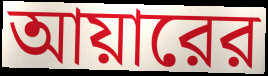
আয়ারের